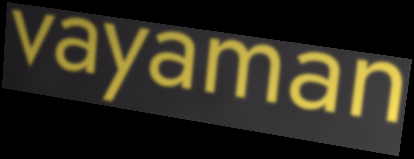
vayaman